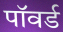
पॉवर्ड